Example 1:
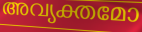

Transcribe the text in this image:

അവ്യക്തമോ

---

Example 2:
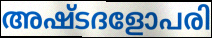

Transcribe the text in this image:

അഷ്ടദളോപരി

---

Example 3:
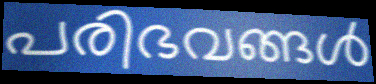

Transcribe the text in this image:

പരിഭവങ്ങൾ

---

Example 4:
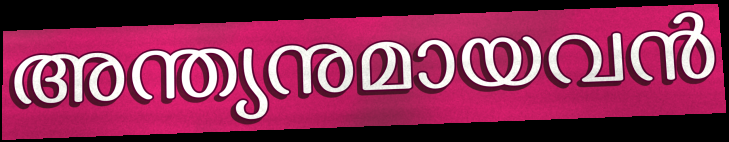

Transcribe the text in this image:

അന്ത്യനുമായവൻ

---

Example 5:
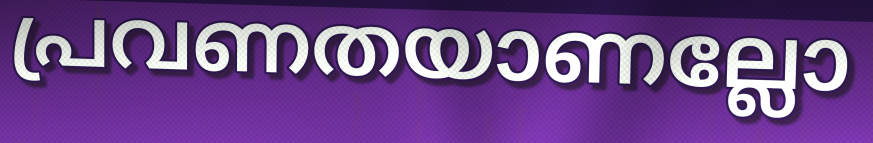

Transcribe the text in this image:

പ്രവണതയാണല്ലോ